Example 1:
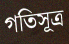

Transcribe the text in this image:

গতিসূত্র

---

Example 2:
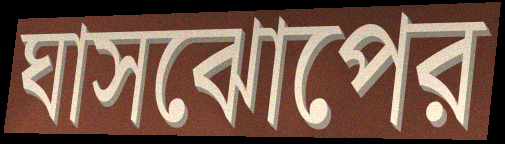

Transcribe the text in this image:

ঘাসঝোপের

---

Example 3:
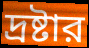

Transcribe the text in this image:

দ্রষ্টার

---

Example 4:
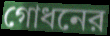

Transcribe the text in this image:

গোধনের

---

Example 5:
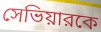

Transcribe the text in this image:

সেভিয়ারকে